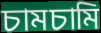
চামচামি